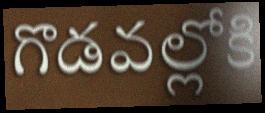
గొడవల్లోకి